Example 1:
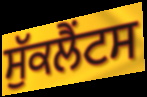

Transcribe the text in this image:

ਸੁੱਕਲੈਂਟਸ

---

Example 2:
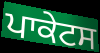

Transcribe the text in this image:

ਪਾਕੇਟਸ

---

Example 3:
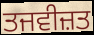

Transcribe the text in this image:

ਤਜਵੀਜ਼ਤ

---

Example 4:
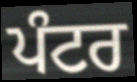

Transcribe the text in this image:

ਪੰਟਰ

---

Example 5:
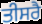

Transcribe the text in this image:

ਤੀਸਰੈ